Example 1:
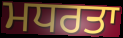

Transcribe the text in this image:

ਮਧਰਤਾ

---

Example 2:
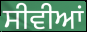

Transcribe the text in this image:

ਸੀਵੀਆਂ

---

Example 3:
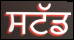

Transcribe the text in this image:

ਸਟੱਡ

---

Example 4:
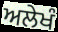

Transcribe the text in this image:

ਅਲੇਖੰ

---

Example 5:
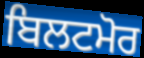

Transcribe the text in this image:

ਬਿਲਟਮੋਰ